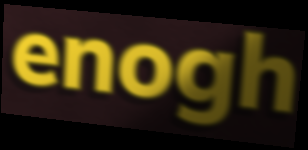
enogh